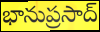
భానుప్రసాద్